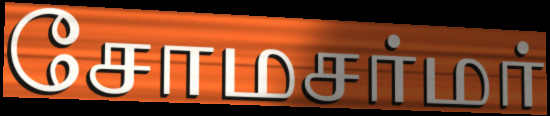
சோமசர்மர்